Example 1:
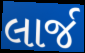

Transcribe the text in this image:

લાર્જ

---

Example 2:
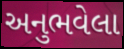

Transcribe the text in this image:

અનુભવેલા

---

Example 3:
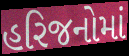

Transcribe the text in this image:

હરિજનોમાં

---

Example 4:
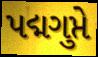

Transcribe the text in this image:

પદ્મગુપ્તે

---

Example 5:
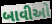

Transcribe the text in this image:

બાવીઓ